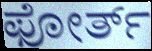
ಫೋರ್ತ್